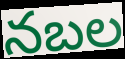
నబల